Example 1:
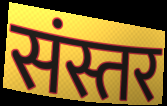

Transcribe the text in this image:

संस्तर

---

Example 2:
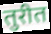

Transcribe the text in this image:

तुरीत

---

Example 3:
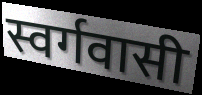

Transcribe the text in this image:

स्वर्गवासी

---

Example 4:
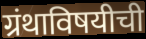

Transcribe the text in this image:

ग्रंथाविषयीची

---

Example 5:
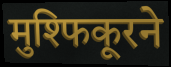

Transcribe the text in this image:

मुश्फिकूरने